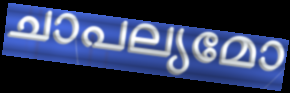
ചാപല്യമോ